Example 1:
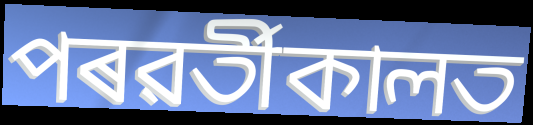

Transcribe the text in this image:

পৰৱৰ্তীকালত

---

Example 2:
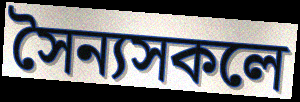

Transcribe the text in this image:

সৈন্যসকলে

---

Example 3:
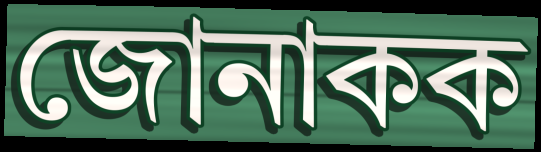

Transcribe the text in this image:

জোনাকক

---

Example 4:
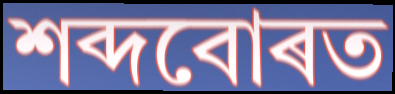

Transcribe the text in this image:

শব্দবোৰত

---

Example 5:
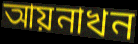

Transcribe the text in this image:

আয়নাখন